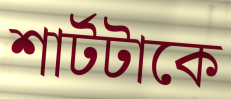
শার্টটাকে